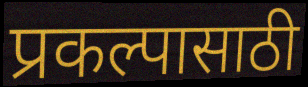
प्रकल्पासाठी